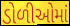
ડોળીઓમાં